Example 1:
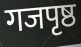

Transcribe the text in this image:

गजपृष्ठ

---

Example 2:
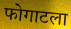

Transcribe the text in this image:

फोगाटला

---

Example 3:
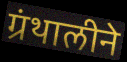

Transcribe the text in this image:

ग्रंथालीने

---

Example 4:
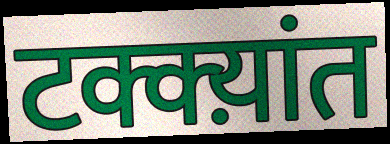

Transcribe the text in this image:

टक्क्य़ांत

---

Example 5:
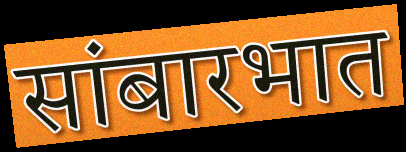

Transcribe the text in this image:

सांबारभात